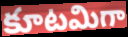
కూటమిగా